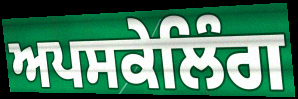
ਅਪਸਕੇਲਿੰਗ